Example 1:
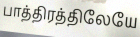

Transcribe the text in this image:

பாத்திரத்திலேயே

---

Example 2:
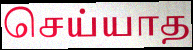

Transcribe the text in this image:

செய்யாத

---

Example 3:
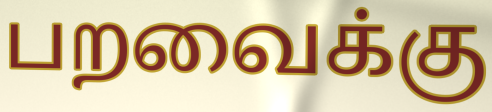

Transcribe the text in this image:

பறவைக்கு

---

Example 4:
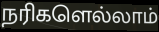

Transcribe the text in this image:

நரிகளெல்லாம்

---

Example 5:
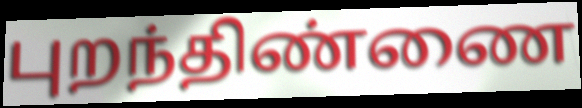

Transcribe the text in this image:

புறந்திண்ணை